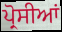
ਪ੍ਰੋਸੀਆਂ